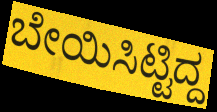
ಬೇಯಿಸಿಟ್ಟಿದ್ದ